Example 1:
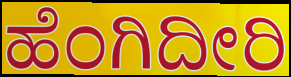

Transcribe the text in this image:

ಹೆಂಗಿದೀರಿ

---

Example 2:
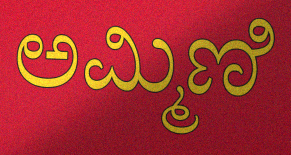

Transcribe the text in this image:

ಅಮ್ಮಿಣಿ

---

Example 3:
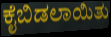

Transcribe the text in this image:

ಕೈಬಿಡಲಾಯಿತು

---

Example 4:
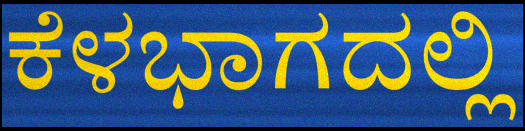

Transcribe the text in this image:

ಕೆಳಭಾಗದಲ್ಲಿ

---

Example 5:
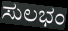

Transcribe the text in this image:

ಸುಲಭಂ